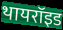
थायरॉइड